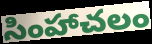
సింహాచలం